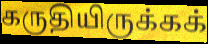
கருதியிருக்கக்